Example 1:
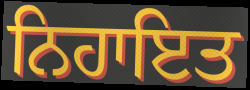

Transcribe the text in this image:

ਨਿਹਾਇਤ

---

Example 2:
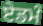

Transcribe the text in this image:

ਏਡਮੰ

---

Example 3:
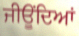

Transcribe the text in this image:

ਜੀਊਂਦਿਆਂ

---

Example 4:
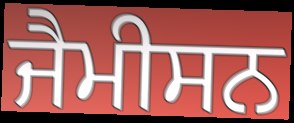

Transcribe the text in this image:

ਜੈਮੀਸਨ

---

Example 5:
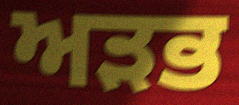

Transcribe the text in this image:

ਅੜਭ